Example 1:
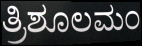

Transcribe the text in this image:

ತ್ರಿಶೂಲಮಂ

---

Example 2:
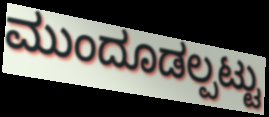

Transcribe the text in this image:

ಮುಂದೂಡಲ್ಪಟ್ಟು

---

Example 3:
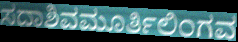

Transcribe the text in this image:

ಸದಾಶಿವಮೂರ್ತಿಲಿಂಗವ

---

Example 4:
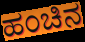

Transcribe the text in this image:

ಹಂಚಿನ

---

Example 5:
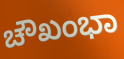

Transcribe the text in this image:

ಚೌಖಂಭಾ